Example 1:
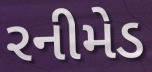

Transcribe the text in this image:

રનીમેડ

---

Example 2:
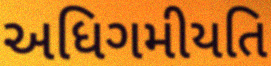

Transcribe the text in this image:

અધિગમીયતિ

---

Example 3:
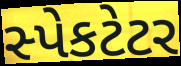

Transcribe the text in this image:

સ્પેકટેટર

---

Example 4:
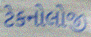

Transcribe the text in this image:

ટેકનોલોજી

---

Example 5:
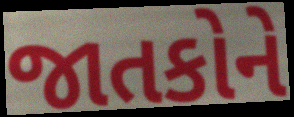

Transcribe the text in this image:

જાતકોને